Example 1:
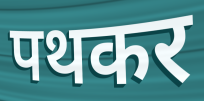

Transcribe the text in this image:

पथकर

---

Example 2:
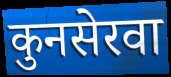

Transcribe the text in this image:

कुनसेरवा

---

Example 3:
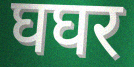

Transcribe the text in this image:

घघर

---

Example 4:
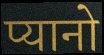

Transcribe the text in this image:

प्यानो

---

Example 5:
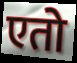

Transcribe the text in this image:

एतो